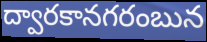
ద్వారకానగరంబున